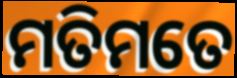
ମତିମତେ